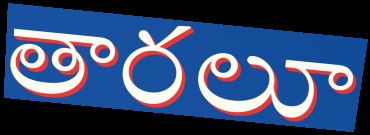
తారలూ